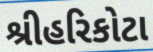
શ્રીહરિકોટા